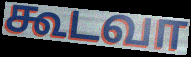
கூடவா